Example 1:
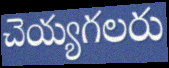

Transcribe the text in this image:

చెయ్యగలరు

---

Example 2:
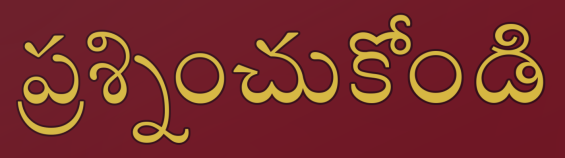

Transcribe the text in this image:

ప్రశ్నించుకోండి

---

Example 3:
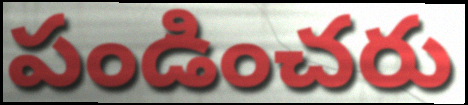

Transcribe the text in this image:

పండించరు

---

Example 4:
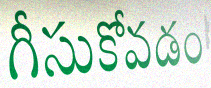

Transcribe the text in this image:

గీసుకోవడం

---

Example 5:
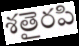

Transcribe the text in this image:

శతైరపి